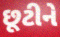
છૂટીને